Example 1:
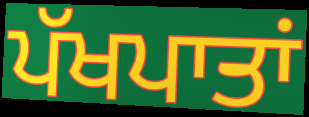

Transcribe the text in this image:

ਪੱਖਪਾਤਾਂ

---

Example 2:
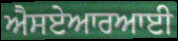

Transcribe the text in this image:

ਐਸਏਆਰਆਈ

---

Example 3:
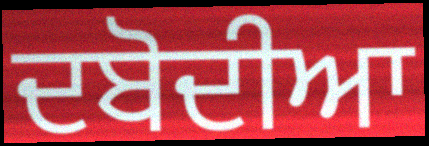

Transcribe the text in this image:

ਦਬੋਦੀਆ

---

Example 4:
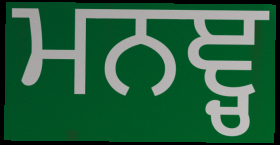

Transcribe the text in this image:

ਮਨਞ੍ਚ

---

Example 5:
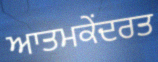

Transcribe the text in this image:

ਆਤਮਕੇਂਦਰਤ